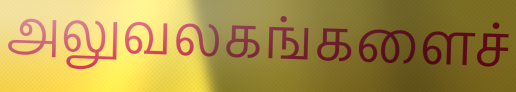
அலுவலகங்களைச்